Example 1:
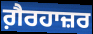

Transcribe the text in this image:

ਗ਼ੈਰਹਾਜ਼ਰ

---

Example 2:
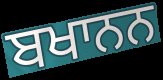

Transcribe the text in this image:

ਬਖਾਨਨ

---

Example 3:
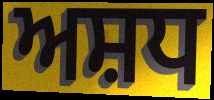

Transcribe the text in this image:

ਅਸ਼ਧ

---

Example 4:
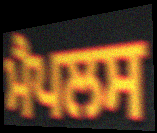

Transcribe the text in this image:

ਮੈਪਲਸ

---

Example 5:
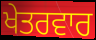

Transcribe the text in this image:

ਖੇਤਰਵਾਰ